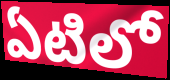
ఏటిలో